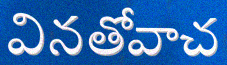
వినతోవాచ